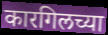
कारगिलच्या